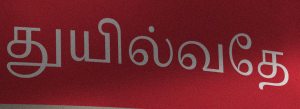
துயில்வதே